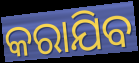
କରାଯିବ